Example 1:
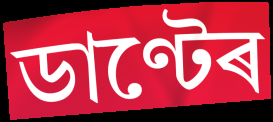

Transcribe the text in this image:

ডাণ্টেৰ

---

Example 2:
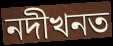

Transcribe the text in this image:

নদীখনত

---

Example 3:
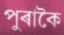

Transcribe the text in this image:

পুৰাকৈ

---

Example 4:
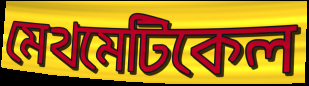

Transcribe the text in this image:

মেথমেটিকেল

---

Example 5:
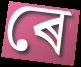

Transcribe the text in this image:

ৰে